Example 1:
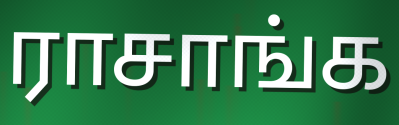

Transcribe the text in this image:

ராசாங்க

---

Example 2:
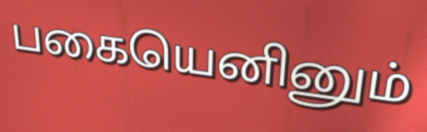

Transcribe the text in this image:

பகையெனினும்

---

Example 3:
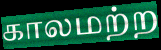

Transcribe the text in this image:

காலமற்ற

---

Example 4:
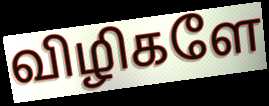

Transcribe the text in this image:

விழிகளே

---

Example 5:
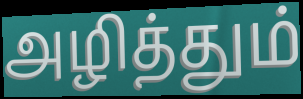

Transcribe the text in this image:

அழித்தும்